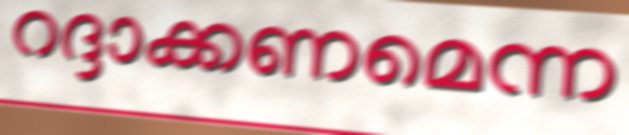
റദ്ദാക്കണമെന്ന